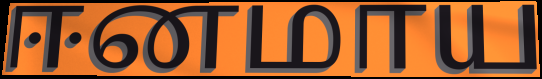
ஈனமாய